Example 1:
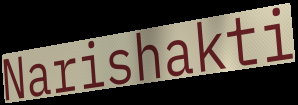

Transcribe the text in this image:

Narishakti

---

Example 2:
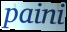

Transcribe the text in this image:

paini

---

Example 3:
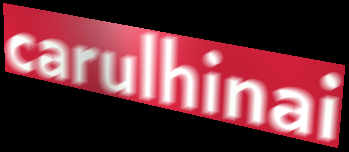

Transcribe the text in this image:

carulhinai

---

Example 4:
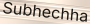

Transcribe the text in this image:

Subhechha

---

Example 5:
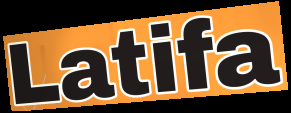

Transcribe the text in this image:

Latifa